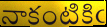
నాకంటికిఁ